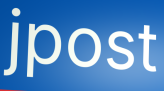
jpost